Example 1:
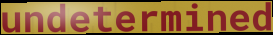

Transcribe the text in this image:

undetermined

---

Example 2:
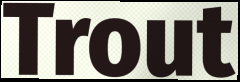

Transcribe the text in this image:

Trout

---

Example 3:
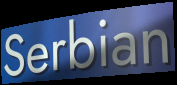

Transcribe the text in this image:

Serbian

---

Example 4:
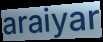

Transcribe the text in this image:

araiyar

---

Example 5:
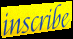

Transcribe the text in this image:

inscribe